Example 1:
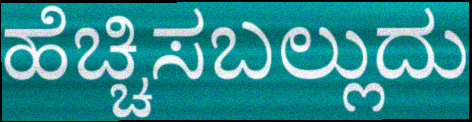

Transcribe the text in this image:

ಹೆಚ್ಚಿಸಬಲ್ಲುದು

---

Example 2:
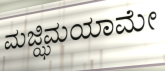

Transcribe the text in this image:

ಮಜ್ಝಿಮಯಾಮೇ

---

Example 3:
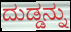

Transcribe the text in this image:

ದುಡ್ಡನ್ನು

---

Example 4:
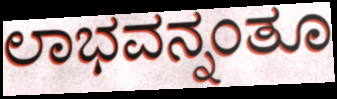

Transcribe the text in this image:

ಲಾಭವನ್ನಂತೂ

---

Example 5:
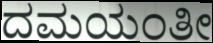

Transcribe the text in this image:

ದಮಯಂತೀ